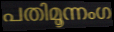
പതിമൂന്നംഗ